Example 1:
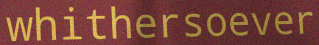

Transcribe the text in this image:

whithersoever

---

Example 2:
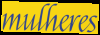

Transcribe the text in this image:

mulheres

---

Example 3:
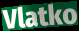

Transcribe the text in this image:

Vlatko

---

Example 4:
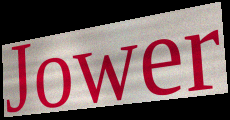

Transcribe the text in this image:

Jower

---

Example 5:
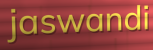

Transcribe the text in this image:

jaswandi